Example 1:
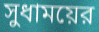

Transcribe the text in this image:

সুধাময়ের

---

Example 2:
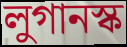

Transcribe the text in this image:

লুগানস্ক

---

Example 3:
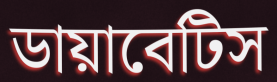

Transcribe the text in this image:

ডায়াবেটিস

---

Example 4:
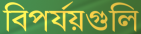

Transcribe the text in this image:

বিপর্যয়গুলি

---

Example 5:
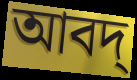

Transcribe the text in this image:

আবদ্